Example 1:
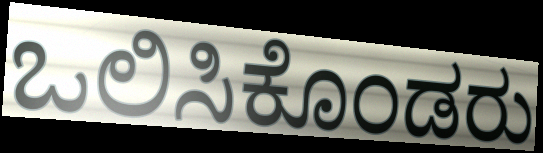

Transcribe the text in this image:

ಒಲಿಸಿಕೊಂಡರು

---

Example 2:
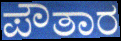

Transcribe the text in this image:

ಪೌತಾರ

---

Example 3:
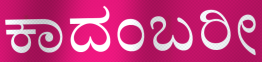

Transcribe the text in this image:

ಕಾದಂಬರೀ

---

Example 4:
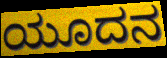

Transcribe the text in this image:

ಯೂದನ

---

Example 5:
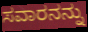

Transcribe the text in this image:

ಸವಾರನನ್ನು